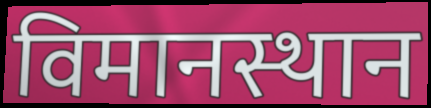
विमानस्थान